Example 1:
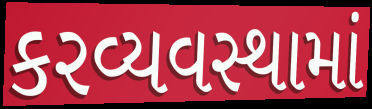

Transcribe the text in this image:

કરવ્યવસ્થામાં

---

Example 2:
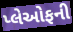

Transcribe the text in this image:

પ્લેઓફની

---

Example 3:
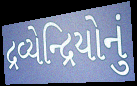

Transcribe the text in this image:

દ્રવ્યેન્દ્રિયોનું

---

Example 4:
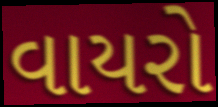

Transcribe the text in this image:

વાયરો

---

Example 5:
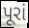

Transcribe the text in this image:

પૂરાં